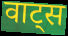
वाट्स